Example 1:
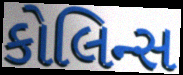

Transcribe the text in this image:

કોલિન્સ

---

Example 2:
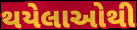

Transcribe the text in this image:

થયેલાઓથી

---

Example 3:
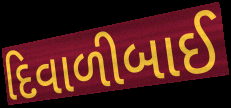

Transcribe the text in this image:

દિવાળીબાઈ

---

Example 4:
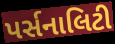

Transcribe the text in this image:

પર્સનાલિટી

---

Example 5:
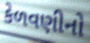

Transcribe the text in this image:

કેળવણીનો